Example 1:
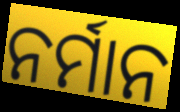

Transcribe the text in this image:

ନର୍ମାନ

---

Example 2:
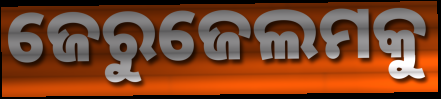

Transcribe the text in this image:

ଜେରୁଜେଲମକୁ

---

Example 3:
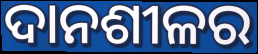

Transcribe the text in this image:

ଦାନଶୀଳର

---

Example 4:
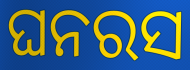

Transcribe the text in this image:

ଘନରସ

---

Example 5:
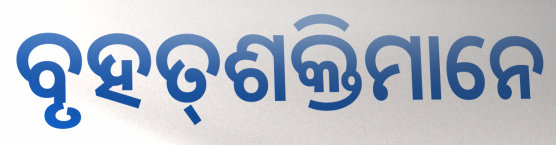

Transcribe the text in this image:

ବୃହତ୍‌ଶକ୍ତିମାନେ